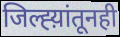
जिल्ह्य़ांतूनही